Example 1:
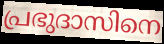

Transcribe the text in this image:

പ്രഭുദാസിനെ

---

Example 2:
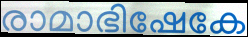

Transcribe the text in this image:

രാമാഭിഷേകേ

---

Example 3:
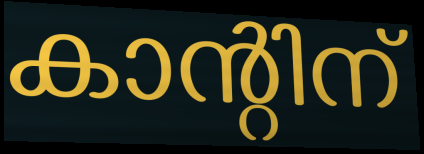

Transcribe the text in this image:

കാന്റിന്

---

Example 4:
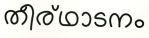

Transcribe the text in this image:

തീര്ഥാടനം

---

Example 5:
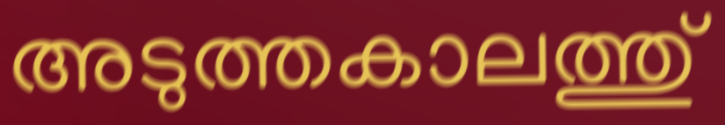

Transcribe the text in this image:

അടുത്തകാലത്തു്